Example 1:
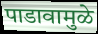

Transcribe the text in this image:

पाडावामुळे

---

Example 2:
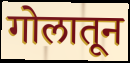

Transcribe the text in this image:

गोलातून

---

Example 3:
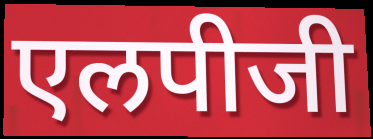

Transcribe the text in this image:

एलपीजी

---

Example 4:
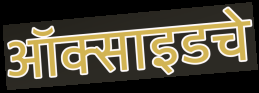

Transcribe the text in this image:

ऑक्साइडचे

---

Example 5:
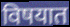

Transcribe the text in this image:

विषयात